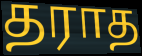
தராத